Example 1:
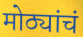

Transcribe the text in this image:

मोठ्यांचं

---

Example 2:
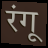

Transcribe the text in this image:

रंगू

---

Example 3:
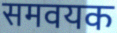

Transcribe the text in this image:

समवयक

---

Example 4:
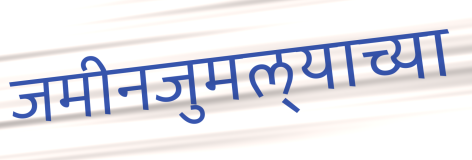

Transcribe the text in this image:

जमीनजुमल्याच्या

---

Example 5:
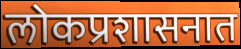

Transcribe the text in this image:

लोकप्रशासनात